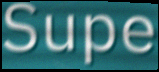
Supe